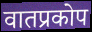
वातप्रकोप